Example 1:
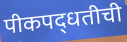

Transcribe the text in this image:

पीकपद्धतीची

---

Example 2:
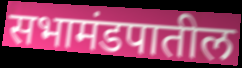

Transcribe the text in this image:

सभामंडपातील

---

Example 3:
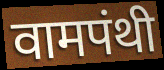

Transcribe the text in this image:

वामपंथी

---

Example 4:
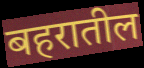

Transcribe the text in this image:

बहरातील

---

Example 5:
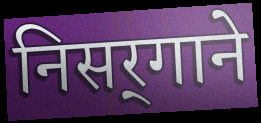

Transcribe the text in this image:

निसर्गाने